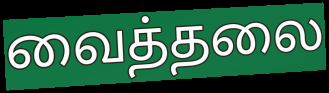
வைத்தலை